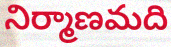
నిర్మాణమది